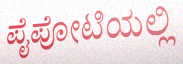
ಪೈಪೋಟಿಯಲ್ಲಿ